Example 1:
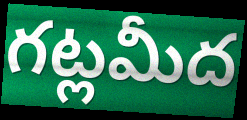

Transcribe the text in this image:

గట్లమీద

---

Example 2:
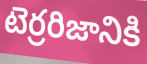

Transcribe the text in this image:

టెర్రరిజానికి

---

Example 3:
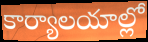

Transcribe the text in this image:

కార్యాలయాల్లో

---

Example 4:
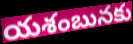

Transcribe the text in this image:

యశంబునకు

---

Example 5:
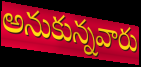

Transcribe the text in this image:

అనుకున్నవారు